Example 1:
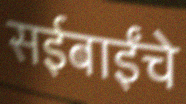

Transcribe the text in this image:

सईबाईंचे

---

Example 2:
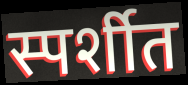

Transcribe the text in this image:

स्पर्शीत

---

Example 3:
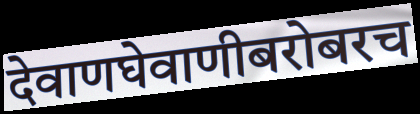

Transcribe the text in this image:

देवाणघेवाणीबरोबरच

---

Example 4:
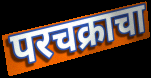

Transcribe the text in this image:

परचक्राचा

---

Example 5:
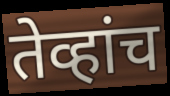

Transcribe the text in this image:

तेव्हांच